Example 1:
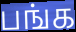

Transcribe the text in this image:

பங்க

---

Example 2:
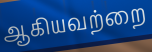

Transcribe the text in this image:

ஆகியவற்றை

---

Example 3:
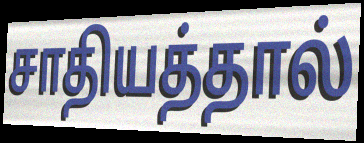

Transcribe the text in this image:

சாதியத்தால்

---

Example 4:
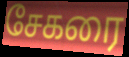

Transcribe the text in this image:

சேகரை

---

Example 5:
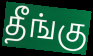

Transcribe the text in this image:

தீங்கு